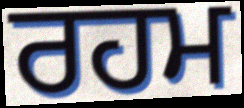
ਰਹਮ